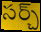
సర్చ్